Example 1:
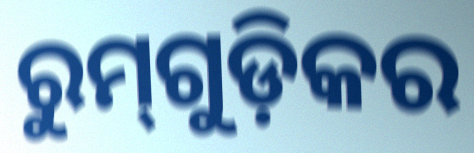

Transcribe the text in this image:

ରୁମ୍‌ଗୁଡ଼ିକର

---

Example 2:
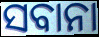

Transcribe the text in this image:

ସବାନା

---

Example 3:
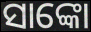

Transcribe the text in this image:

ସାଙ୍କୋ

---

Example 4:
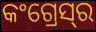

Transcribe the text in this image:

କଂଗ୍ରେସ୍‌ର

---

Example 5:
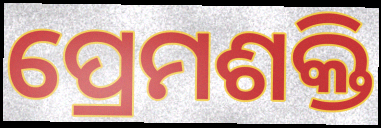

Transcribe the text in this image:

ପ୍ରେମଶକ୍ତି